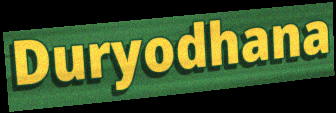
Duryodhana